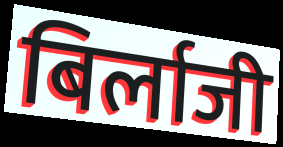
बिर्लाजी